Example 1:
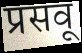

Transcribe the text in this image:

प्रसवू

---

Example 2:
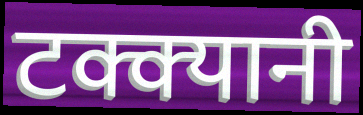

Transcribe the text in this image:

टक्क्यानी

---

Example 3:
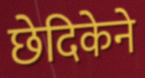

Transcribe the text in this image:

छेदिकेने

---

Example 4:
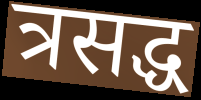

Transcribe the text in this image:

त्रसद्ध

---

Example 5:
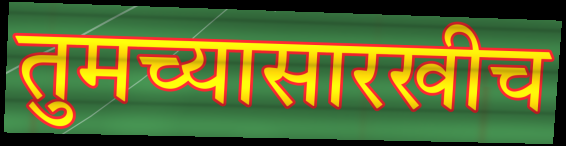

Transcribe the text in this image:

तुमच्यासारखीच